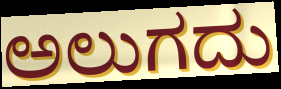
ಅಲುಗದು